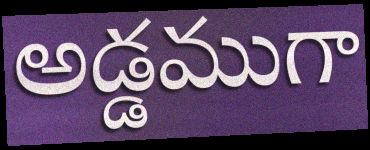
అడ్డముగా